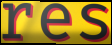
res